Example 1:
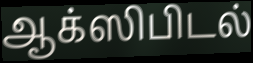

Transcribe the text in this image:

ஆக்ஸிபிடல்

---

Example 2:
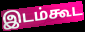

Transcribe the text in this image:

இடம்கூட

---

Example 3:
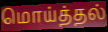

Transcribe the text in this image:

மொய்த்தல்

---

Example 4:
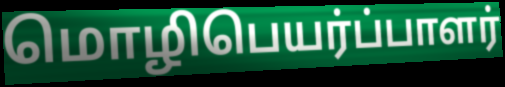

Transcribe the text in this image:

மொழிபெயர்ப்பாளர்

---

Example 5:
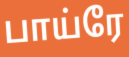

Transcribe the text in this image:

பாய்ரே